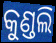
କୁଣ୍ଡଲି